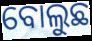
ବୋଲୁଛ